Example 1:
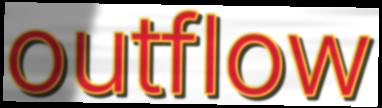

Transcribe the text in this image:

outflow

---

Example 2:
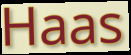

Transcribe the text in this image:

Haas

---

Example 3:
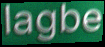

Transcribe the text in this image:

lagbe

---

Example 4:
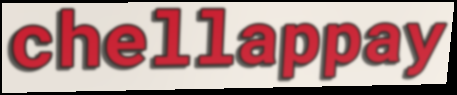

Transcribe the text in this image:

chellappay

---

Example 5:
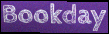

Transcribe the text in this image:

Bookday